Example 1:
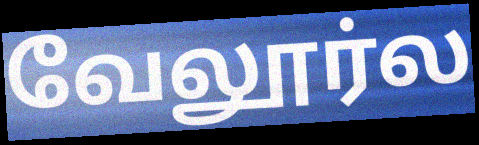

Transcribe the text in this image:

வேலூர்ல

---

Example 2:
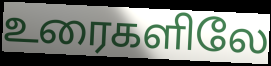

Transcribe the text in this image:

உரைகளிலே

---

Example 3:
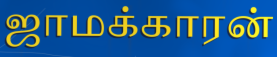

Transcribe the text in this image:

ஜாமக்காரன்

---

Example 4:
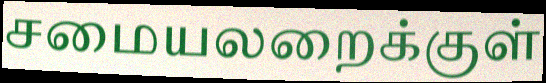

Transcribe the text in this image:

சமையலறைக்குள்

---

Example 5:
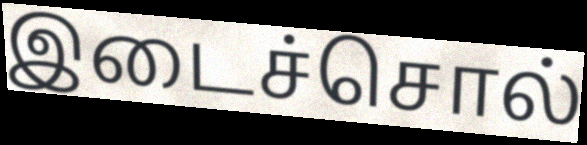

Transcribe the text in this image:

இடைச்சொல்